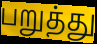
பறுத்து